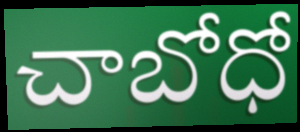
చాబోధో